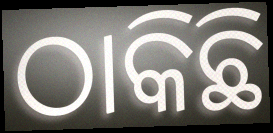
ଠାକିଛି